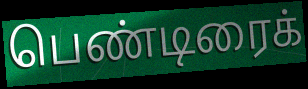
பெண்டிரைக்